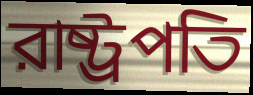
রাষ্ট্রপতি